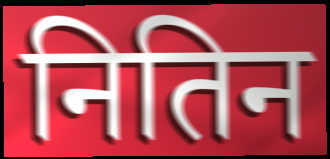
नितिन